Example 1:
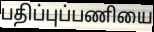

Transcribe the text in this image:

பதிப்புப்பணியை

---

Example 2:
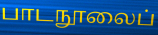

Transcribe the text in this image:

பாடநூலைப்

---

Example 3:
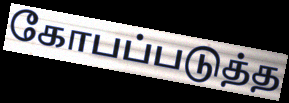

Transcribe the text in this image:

கோபப்படுத்த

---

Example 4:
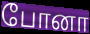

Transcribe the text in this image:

போனா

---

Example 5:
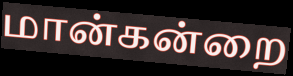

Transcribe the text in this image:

மான்கன்றை